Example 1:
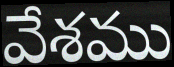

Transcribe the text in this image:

వేశము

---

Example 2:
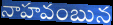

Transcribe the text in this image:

నాహవంబున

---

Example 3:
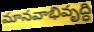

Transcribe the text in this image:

మానవాభివృద్ధి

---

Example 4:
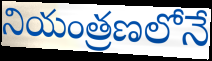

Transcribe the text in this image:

నియంత్రణలోనే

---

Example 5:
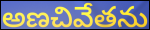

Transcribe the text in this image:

అణచివేతను